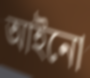
আইনো